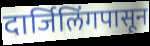
दार्जिलिंगपासून